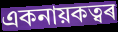
একনায়কত্বৰ